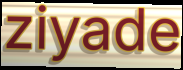
ziyade